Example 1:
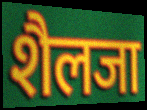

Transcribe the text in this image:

शैलजा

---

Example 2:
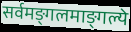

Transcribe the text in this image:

सर्वमङ्गलमाङ्गल्ये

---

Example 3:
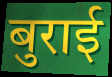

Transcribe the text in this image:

बुराई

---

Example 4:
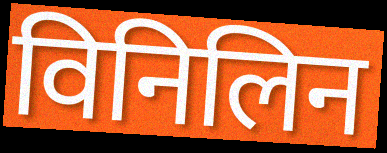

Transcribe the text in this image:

विनिलिन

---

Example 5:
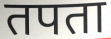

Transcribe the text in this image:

तपता